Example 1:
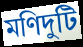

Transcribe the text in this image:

মণিদুটি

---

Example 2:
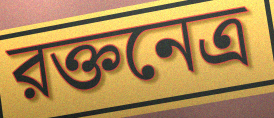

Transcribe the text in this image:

রক্তনেত্র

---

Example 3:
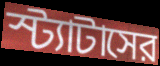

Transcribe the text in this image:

স্ট্যাটাসের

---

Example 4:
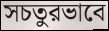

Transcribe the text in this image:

সচতুরভাবে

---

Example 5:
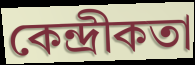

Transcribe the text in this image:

কেন্দ্রীকতা